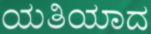
ಯತಿಯಾದ